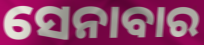
ସେନାବାର